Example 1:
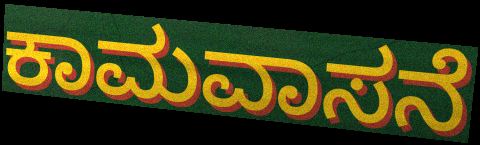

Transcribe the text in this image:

ಕಾಮವಾಸನೆ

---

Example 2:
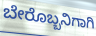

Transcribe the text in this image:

ಬೇರೊಬ್ಬನಿಗಾಗಿ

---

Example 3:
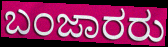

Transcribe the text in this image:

ಬಂಜಾರರು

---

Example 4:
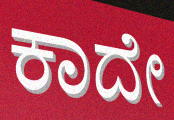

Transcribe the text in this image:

ಕಾದೇ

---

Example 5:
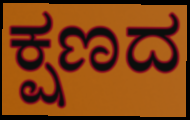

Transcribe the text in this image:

ಕ್ಷಣದ